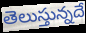
తెలుస్తున్నదే